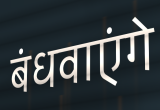
बंधवाएंगे